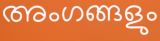
അംഗങ്ങളും